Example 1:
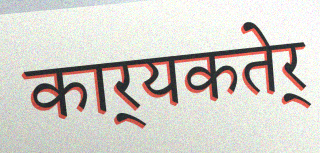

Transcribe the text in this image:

कार्यकतेर्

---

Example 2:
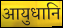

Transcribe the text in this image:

आयुधानि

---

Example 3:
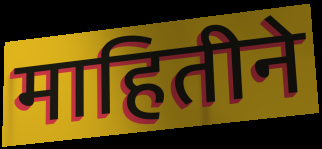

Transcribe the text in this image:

माहितीने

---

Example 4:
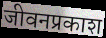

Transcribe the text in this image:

जीवनप्रकाश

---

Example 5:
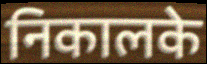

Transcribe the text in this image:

निकालके